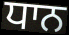
ਧਾਨ